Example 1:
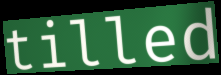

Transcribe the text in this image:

tilled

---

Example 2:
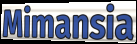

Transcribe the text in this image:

Mimansia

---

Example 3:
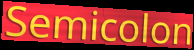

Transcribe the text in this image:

Semicolon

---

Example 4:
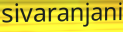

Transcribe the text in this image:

sivaranjani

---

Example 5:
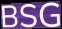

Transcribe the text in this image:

BSG